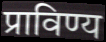
प्राविण्य